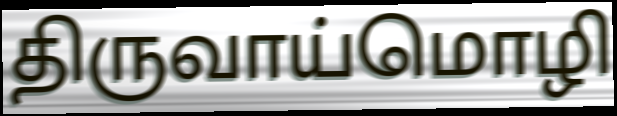
திருவாய்மொழி